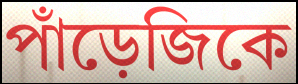
পাঁড়েজিকে